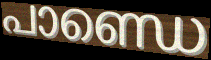
പാണ്ഡെ